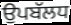
ਉਪਬੱਲਧ